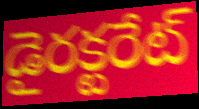
డైరక్టరేట్